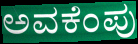
ಅವಕೆಂಪು